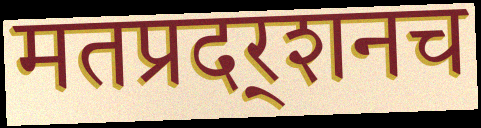
मतप्रदर्शनच